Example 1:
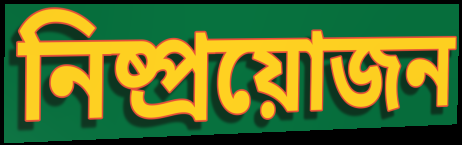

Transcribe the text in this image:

নিষ্প্ৰয়োজন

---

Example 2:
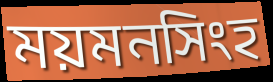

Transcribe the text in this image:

ময়মনসিংহ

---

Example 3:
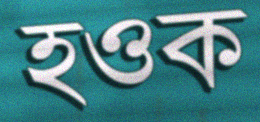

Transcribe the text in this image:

হওক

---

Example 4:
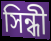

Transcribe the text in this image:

সিন্ধী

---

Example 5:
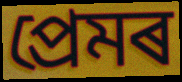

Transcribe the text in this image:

প্ৰেমৰ